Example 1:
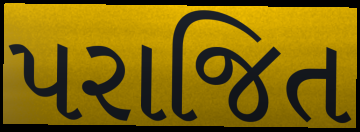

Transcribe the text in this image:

પરાજિત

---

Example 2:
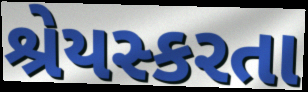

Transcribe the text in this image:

શ્રેયસ્કરતા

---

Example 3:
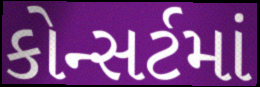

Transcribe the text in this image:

કોન્સર્ટમાં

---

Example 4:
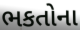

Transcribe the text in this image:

ભકતોના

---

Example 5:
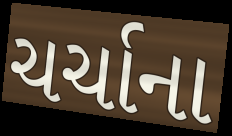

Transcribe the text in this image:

ચર્ચાના